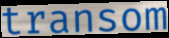
transom